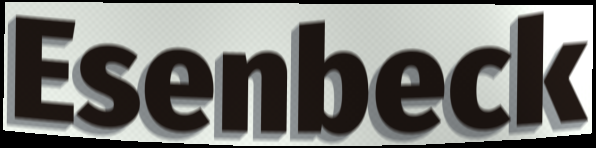
Esenbeck